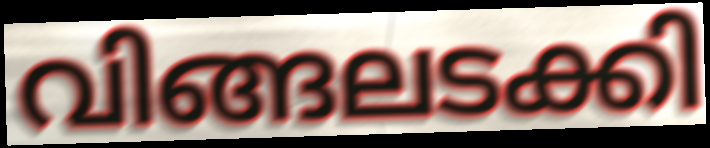
വിങ്ങലടക്കി